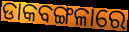
ଡାକବଙ୍ଗଳାରେ